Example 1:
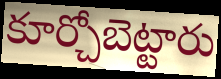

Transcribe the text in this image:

కూర్చోబెట్టారు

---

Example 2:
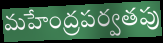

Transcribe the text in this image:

మహేంద్రపర్వతపు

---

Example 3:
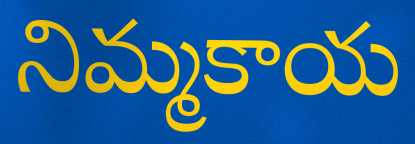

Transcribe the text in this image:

నిమ్మకాయ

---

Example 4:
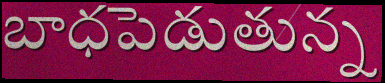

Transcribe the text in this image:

బాధపెడుతున్న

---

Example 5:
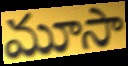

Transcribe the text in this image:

మూసా